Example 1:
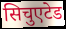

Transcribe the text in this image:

सिचुएटेड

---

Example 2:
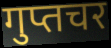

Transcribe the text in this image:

गुप्तचर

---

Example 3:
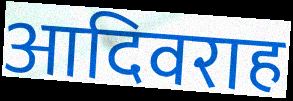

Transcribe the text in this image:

आदिवराह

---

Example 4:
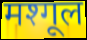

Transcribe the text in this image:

मश्गूल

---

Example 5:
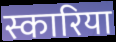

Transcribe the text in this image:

स्कारिया